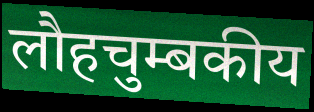
लौहचुम्बकीय